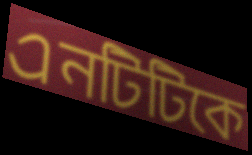
এনটিটিকে